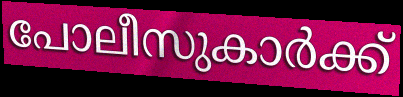
പോലീസുകാർക്ക്